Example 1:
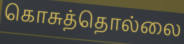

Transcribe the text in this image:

கொசுத்தொல்லை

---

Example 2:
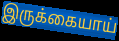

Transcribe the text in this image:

இருக்கையாய்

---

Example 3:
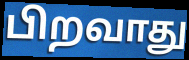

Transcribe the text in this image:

பிறவாது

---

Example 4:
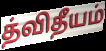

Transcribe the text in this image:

த்விதீயம்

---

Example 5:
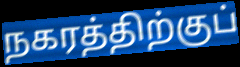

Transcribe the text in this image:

நகரத்திற்குப்